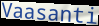
Vaasanti